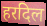
हरदिल